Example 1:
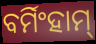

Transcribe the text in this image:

ବର୍ମିଂହାମ୍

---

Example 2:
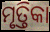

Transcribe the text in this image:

ମୃତ୍ତିକା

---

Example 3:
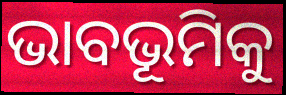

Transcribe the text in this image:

ଭାବଭୂମିକୁ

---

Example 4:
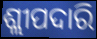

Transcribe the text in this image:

ଶ୍ଲୀପଦାରି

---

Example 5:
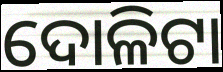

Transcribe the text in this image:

ଦୋଳିଟା